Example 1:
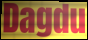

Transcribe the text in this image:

Dagdu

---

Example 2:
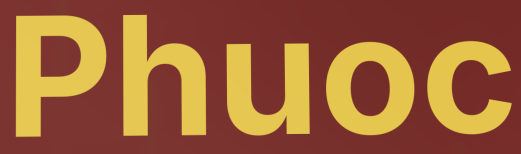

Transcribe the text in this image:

Phuoc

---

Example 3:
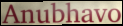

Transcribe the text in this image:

Anubhavo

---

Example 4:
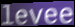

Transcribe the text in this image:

levee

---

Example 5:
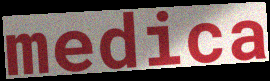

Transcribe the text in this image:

medica